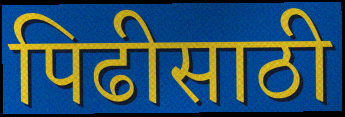
पिढीसाठी